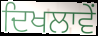
ਦਿਖਲਾਵੇਂ